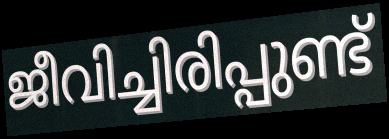
ജീവിച്ചിരിപ്പുണ്ട്